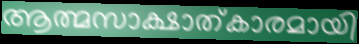
ആത്മസാക്ഷാത്കാരമായി